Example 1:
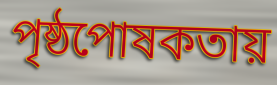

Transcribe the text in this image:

পৃষ্ঠপোষকতায়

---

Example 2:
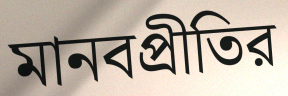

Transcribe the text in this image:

মানবপ্রীতির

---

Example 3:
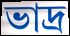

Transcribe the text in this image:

ভাদ্র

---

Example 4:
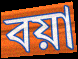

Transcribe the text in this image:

বয়া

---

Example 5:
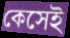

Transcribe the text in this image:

কেসেই